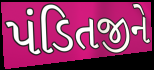
પંડિતજીને